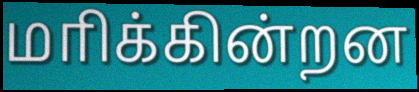
மரிக்கின்றன